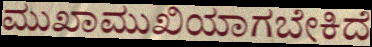
ಮುಖಾಮುಖಿಯಾಗಬೇಕಿದೆ